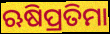
ଋଷିପ୍ରତିମା